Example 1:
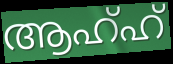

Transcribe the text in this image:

ആഹ്ഹ്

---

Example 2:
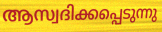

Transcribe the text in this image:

ആസ്വദിക്കപ്പെടുന്നു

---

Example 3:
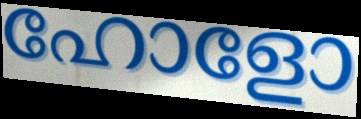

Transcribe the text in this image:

ഹോളോ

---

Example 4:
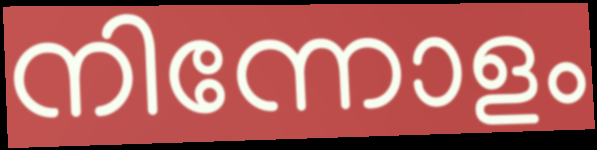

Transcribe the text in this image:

നിന്നോളം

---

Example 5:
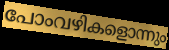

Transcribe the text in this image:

പോംവഴികളൊന്നും